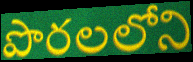
పొరలలోని